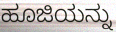
ಹೂಜಿಯನ್ನು